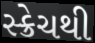
સ્ક્રેચથી